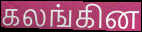
கலங்கின